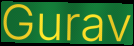
Gurav